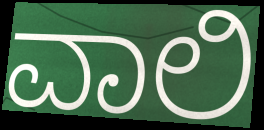
ವಾಲಿ